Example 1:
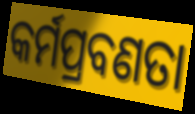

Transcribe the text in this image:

କର୍ମପ୍ରବଣତା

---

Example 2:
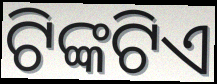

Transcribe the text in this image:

ଟିଙ୍କଟିଏ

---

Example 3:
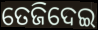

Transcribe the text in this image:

ତେଜିଦେଇ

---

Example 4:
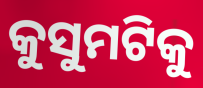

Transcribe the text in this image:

କୁସୁମଟିକୁ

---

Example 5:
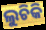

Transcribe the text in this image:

ଲୁଚିକି